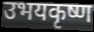
उभयकृष्ण